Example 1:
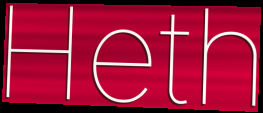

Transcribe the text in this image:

Heth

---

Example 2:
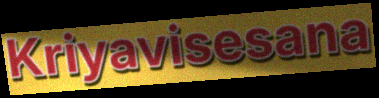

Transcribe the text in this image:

Kriyavisesana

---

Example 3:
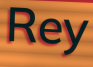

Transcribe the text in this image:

Rey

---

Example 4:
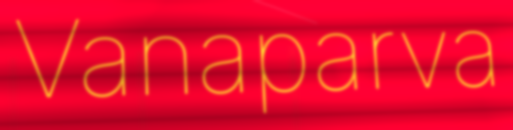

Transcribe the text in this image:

Vanaparva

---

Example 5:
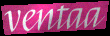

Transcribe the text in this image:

ventaa